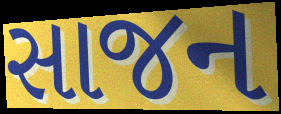
સાજન